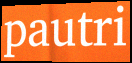
pautri